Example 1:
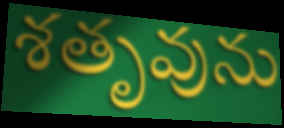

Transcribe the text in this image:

శతృవును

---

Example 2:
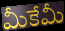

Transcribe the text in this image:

మీకేమీ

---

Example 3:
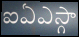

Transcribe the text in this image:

ఐఏఎస్గా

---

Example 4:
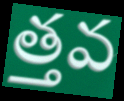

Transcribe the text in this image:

త్తవ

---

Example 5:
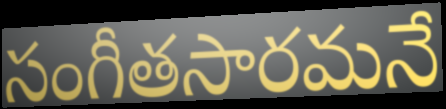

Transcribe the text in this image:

సంగీతసారమనే